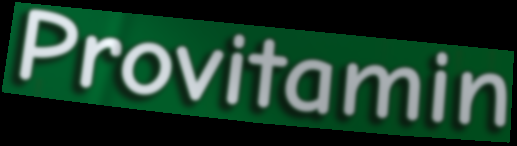
Provitamin